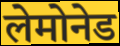
लेमोनेड